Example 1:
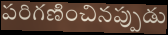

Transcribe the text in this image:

పరిగణించినప్పుడు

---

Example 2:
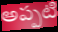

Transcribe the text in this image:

అప్పటి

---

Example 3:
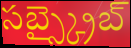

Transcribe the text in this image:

సబ్స్క్రైబ్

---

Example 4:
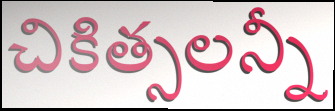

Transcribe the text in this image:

చికిత్సలన్నీ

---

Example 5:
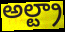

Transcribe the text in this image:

అల్ట్రా